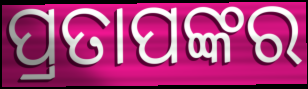
ପ୍ରତାପଙ୍କର